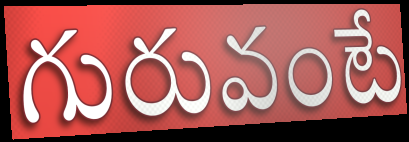
గురువంటే